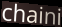
chaini